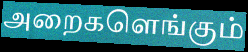
அறைகளெங்கும்